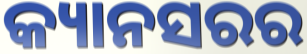
କ୍ୟାନସରର